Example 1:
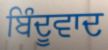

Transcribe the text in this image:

ਬਿੰਦੂਵਾਦ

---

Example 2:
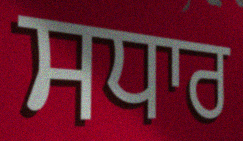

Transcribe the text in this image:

ਸਧਾਰ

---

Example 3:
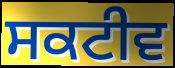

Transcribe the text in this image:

ਸਕਟੀਵ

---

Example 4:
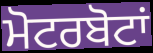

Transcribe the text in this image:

ਮੋਟਰਬੋਟਾਂ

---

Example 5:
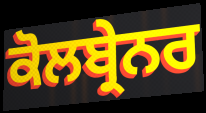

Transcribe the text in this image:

ਕੋਲਬ੍ਰੇਨਰ